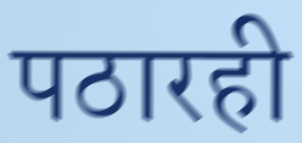
पठारही